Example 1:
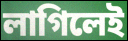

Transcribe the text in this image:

লাগিলেই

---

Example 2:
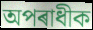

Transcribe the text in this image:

অপৰাধীক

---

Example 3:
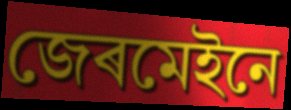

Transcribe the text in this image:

জেৰমেইনে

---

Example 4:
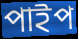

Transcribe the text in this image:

পাইপ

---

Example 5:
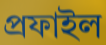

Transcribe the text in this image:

প্ৰফাইল